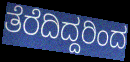
ತೆರೆದಿದ್ದರಿಂದ